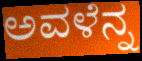
ಅವಳೆನ್ನ